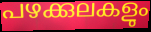
പഴക്കുലകളും